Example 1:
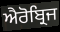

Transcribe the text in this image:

ਐਰੋਬ੍ਰਿਜ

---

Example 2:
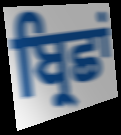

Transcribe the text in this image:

ਬ੍ਰਿਛਾਂ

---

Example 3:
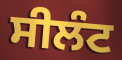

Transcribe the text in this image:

ਸੀਲੰਟ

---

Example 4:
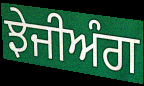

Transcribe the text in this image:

ਝੇਜੀਅੰਗ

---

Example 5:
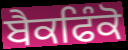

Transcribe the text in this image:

ਬੈਕਫਿੰਕੋ